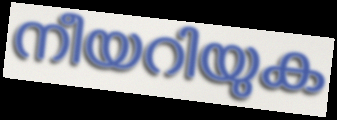
നീയറിയുക